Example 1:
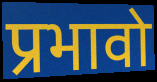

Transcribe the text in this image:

प्रभावो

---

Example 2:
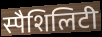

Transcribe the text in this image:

स्पैशिलिटी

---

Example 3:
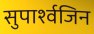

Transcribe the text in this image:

सुपार्श्वजिन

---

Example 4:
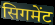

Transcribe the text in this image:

सिगमेंट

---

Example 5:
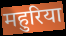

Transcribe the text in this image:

महुरिया